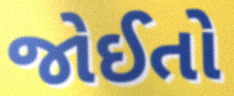
જોઈતો